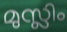
മുസ്ലിം